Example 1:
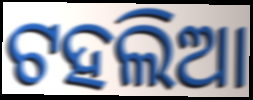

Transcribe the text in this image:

ଟହଲିଆ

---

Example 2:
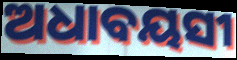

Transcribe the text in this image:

ଅଧାବୟସୀ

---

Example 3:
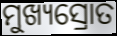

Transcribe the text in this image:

ମୁଖ୍ୟସ୍ରୋତ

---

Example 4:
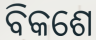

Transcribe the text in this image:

ବିକଶେ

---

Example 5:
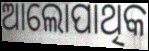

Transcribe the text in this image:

ଆଲୋପାଥିକ